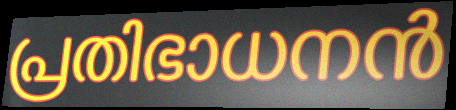
പ്രതിഭാധനൻ